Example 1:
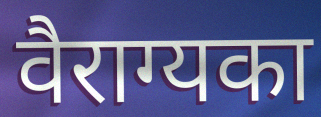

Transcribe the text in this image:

वैराग्यका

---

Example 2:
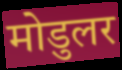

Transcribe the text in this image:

मोडुलर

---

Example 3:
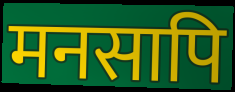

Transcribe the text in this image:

मनसापि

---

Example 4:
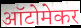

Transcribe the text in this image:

ऑटोमेकर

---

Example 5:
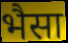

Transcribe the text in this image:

भैसा